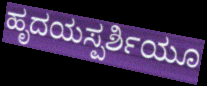
ಹೃದಯಸ್ಪರ್ಶಿಯೂ